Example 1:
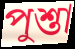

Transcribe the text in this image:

পুশ্তা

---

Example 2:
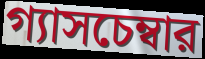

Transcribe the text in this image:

গ্যাসচেম্বার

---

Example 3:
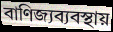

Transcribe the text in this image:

বাণিজ্যব্যবস্থায়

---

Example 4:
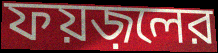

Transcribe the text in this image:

ফয়জ়লের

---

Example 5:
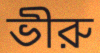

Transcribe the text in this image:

ভীরু